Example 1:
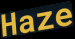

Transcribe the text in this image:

Haze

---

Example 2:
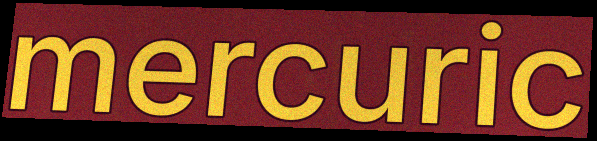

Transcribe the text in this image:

mercuric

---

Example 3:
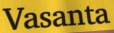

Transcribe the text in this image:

Vasanta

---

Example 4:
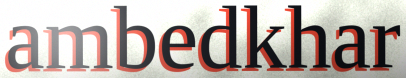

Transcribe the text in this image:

ambedkhar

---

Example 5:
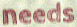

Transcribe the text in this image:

needs